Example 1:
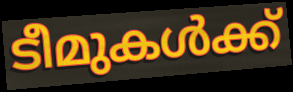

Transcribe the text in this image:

ടീമുകൾക്ക്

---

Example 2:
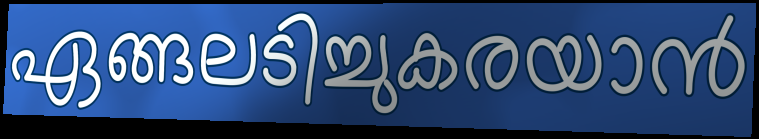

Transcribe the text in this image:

ഏങ്ങലടിച്ചുകരയാൻ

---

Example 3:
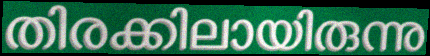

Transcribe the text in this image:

തിരക്കിലായിരുന്നു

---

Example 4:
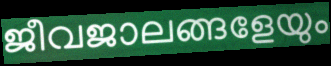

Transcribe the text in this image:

ജീവജാലങ്ങളേയും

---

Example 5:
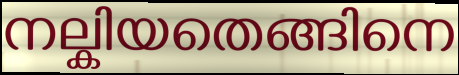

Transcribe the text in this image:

നല്കിയതെങ്ങിനെ